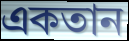
একতান